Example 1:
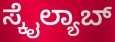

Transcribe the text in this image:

ಸ್ಕೈಲ್ಯಾಬ್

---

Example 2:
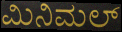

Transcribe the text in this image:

ಮಿನಿಮಲ್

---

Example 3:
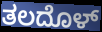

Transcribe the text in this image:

ತಲದೊಳ್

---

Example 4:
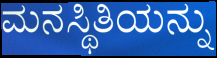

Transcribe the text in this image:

ಮನಸ್ಥಿತಿಯನ್ನು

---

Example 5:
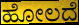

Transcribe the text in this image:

ಹೋಲದೆ